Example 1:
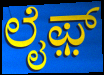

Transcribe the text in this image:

ಲೈಫ಼್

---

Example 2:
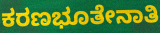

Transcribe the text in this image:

ಕರಣಭೂತೇನಾತಿ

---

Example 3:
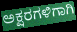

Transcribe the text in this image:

ಅಕ್ಷರಗಳಿಗಾಗಿ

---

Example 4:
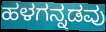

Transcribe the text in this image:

ಹಳಗನ್ನಡವು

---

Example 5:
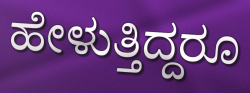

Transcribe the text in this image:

ಹೇಳುತ್ತಿದ್ದರೂ